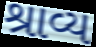
શ્રાવ્ય